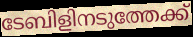
ടേബിളിനടുത്തേക്ക്